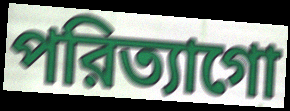
পরিত্যাগো